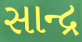
સાન્દ્ર